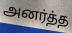
அனர்த்த